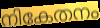
നികേതനം